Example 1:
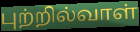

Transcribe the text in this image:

புற்றில்வாள்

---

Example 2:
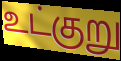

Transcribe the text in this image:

உட்குறு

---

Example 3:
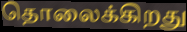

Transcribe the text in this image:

தொலைக்கிறது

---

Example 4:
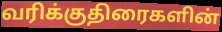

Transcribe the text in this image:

வரிக்குதிரைகளின்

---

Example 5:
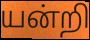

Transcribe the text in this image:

யன்றி